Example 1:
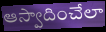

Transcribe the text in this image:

ఆస్వాదించేలా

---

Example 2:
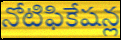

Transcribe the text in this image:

నోటిఫికేషన్ల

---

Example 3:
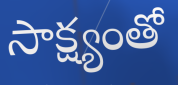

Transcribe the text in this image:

సాక్ష్యంతో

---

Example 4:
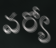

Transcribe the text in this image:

వర్యో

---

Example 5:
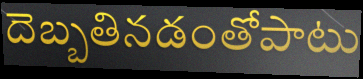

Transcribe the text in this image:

దెబ్బతినడంతోపాటు